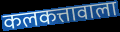
कलकत्तावाला